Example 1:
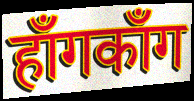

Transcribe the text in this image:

हाँगकाँग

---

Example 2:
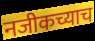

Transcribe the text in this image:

नजीकच्याच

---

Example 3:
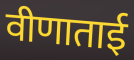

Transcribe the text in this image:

वीणाताई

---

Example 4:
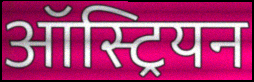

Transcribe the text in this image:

ऑस्ट्रियन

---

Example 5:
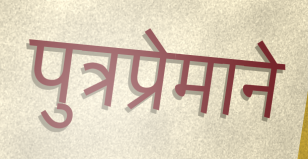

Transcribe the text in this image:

पुत्रप्रेमाने